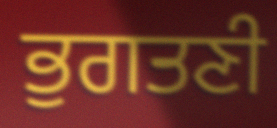
ਭੁਗਤਣੀ